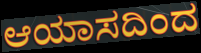
ಆಯಾಸದಿಂದ